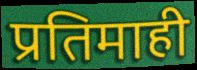
प्रतिमाही